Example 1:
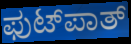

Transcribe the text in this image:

ಫುಟ್‍ಪಾತ್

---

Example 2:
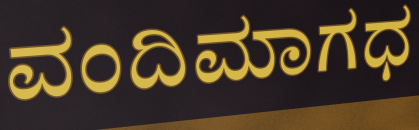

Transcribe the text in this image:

ವಂದಿಮಾಗಧ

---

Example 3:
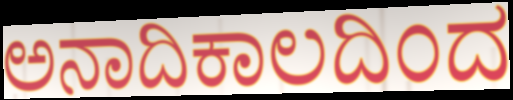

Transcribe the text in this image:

ಅನಾದಿಕಾಲದಿಂದ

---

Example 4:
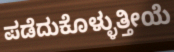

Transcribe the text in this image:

ಪಡೆದುಕೊಳ್ಳುತ್ತೀಯೆ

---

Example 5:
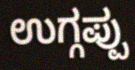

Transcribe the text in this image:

ಉಗ್ಗಪ್ಪು